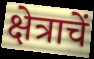
क्षेत्राचें